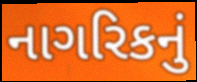
નાગરિકનું